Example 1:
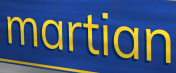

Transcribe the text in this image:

martian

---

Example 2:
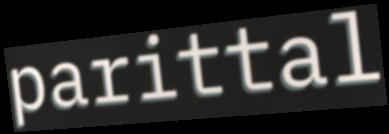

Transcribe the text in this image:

parittal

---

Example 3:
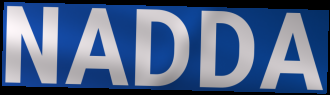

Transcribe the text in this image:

NADDA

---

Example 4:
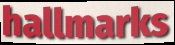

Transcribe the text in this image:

hallmarks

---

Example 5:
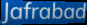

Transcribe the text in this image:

Jafrabad